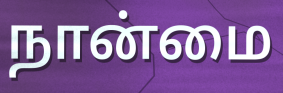
நான்மை